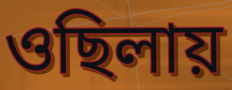
ওছিলায়